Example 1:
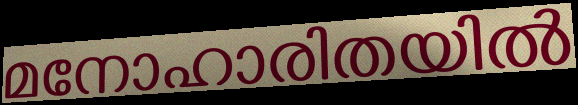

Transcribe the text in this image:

മനോഹാരിതയിൽ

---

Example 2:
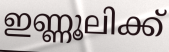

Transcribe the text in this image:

ഇണ്ണൂലിക്ക്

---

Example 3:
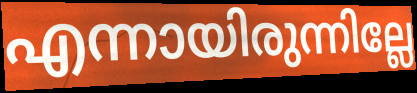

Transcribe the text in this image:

എന്നായിരുന്നില്ലേ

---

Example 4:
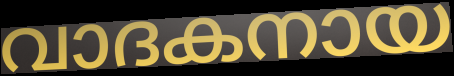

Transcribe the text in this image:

വാദകനായ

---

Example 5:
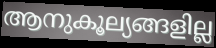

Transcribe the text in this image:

ആനുകൂല്യങ്ങളില്ല